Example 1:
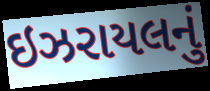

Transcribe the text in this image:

ઇઝરાયલનું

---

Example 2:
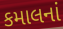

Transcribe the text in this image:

કમાલનાં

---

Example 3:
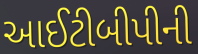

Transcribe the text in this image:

આઈટીબીપીની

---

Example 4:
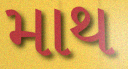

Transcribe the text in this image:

માથ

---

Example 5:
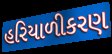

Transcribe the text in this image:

હરિયાળીકરણ